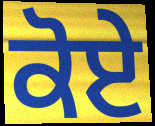
ਕੋਏ